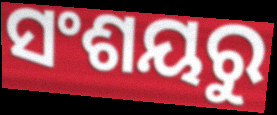
ସଂଶୟରୁ